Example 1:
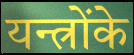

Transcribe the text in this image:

यन्त्रोंके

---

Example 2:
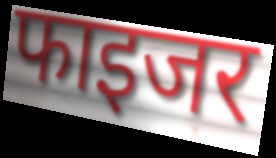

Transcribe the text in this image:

फाइजर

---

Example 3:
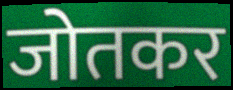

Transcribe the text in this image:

जोतकर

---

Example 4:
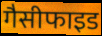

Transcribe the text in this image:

गैसीफाइड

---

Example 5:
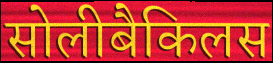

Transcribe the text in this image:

सोलीबैकिलस